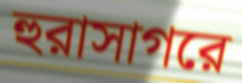
হুরাসাগরে